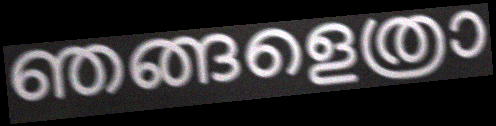
ഞങ്ങളെത്രാ